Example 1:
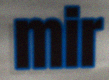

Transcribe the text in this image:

mir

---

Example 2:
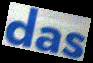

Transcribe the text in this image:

das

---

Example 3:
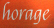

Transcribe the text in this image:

horage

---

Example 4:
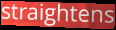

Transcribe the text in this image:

straightens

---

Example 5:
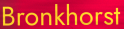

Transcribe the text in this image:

Bronkhorst